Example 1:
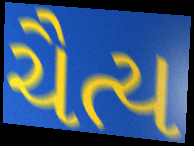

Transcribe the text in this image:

ચૈત્ય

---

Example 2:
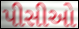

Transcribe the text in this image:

પીસીઓ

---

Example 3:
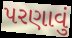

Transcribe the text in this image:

પરણાવું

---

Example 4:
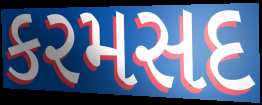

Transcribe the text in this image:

કરમસદ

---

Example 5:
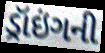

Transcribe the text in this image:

ડ્રૉઇંગની